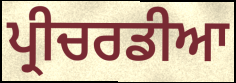
ਪ੍ਰੀਚਰਡੀਆ